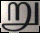
று